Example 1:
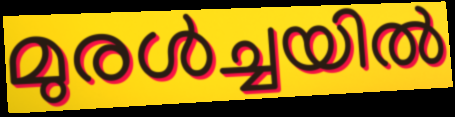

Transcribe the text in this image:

മുരൾച്ചയിൽ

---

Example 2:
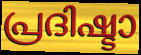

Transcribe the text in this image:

പ്രദിഷ്ടാ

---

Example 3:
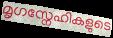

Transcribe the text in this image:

മൃഗസ്നേഹികളുടെ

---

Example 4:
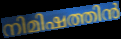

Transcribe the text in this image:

നിമിഷത്തിൻ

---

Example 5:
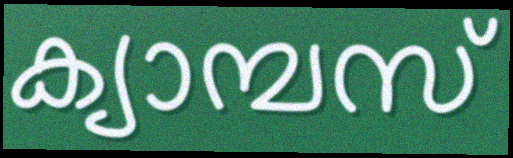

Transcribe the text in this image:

ക്യാമ്പസ്